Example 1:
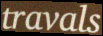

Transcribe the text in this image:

travals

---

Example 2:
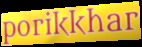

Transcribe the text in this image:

porikkhar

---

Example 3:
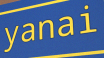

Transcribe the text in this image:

yanai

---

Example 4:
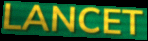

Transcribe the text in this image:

LANCET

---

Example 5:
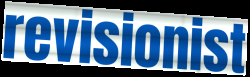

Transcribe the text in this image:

revisionist